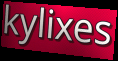
kylixes